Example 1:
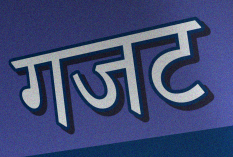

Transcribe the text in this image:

गजट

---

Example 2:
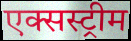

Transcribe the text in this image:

एक्सस्ट्रीम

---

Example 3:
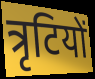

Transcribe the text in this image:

त्रृटियों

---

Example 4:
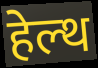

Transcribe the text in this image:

हेल्‍थ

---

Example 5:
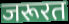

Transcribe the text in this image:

जरूरत